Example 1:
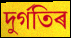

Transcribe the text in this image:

দুৰ্গতিৰ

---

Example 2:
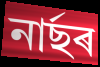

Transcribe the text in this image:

নাৰ্ছৰ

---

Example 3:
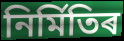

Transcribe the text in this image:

নিৰ্মিতিৰ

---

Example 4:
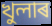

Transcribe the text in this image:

খুলাৰ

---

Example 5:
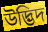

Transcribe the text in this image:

উদ্ভিদ